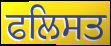
ਫਲਿਸਤ